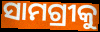
ସାମଗ୍ରୀକୁ